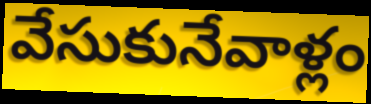
వేసుకునేవాళ్లం